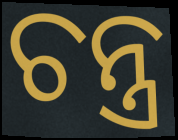
ଚନ୍ତ୍ର